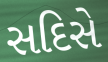
સદિસે